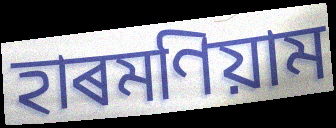
হাৰমণিয়াম